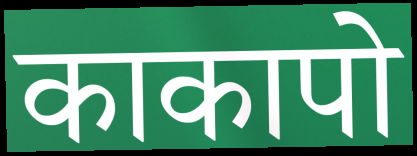
काकापो